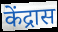
केंद्रास